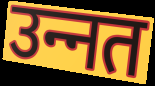
उन्‍नत